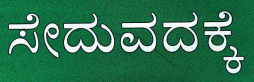
ಸೇದುವದಕ್ಕೆ